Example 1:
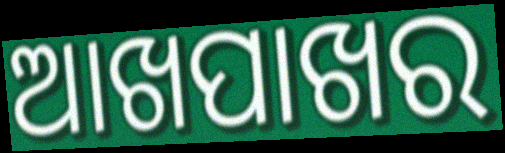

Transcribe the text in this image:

ଆଖପାଖର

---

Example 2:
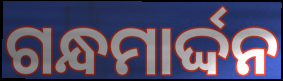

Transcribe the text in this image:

ଗନ୍ଧମାର୍ଦ୍ଦନ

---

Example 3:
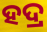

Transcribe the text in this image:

ହଦ୍ର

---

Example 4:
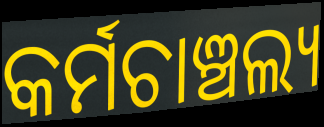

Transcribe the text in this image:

କର୍ମଚାଞ୍ଚଲ୍ୟ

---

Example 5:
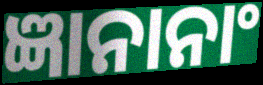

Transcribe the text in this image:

ଜ୍ଞାନାନାଂ